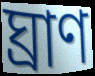
ঘ্রাণ